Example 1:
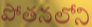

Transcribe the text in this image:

పోతనలోని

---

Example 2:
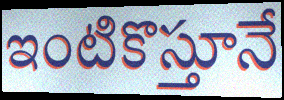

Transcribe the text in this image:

ఇంటికొస్తూనే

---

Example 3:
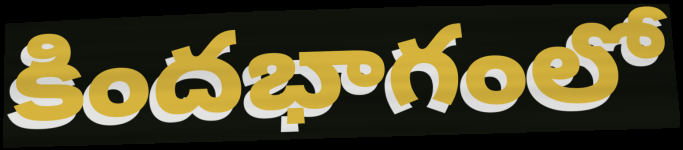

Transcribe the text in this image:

కిందభాగంలో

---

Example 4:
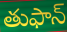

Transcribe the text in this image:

తుఫాన్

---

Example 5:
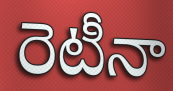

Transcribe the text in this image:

రెటీనా